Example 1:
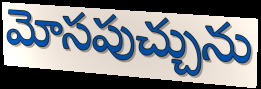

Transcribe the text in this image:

మోసపుచ్చును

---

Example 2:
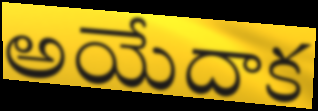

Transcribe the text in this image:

అయేదాక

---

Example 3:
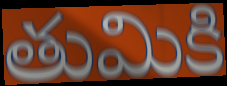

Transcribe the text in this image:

తుమికి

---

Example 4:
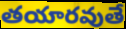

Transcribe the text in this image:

తయారవుతే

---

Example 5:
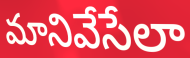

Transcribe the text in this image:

మానివేసేలా